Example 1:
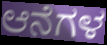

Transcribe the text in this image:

ಆನೆಗಳ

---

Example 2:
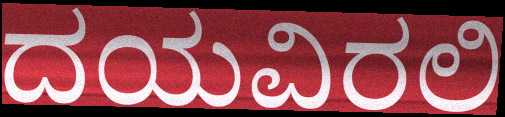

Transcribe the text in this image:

ದಯವಿರಲಿ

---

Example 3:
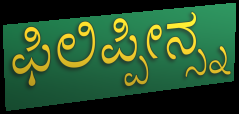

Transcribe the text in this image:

ಫಿಲಿಪ್ಪೀನ್ಸ್ನ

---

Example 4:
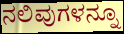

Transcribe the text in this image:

ನಲಿವುಗಳನ್ನೂ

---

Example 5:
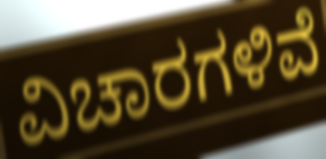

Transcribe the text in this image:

ವಿಚಾರಗಳಿವೆ